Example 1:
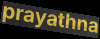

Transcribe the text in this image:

prayathna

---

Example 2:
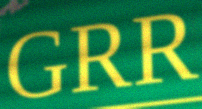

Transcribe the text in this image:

GRR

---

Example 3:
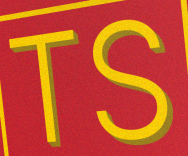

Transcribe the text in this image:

TS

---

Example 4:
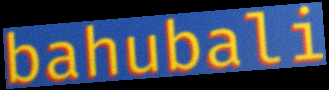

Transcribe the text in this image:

bahubali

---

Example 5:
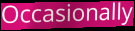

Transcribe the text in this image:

Occasionally